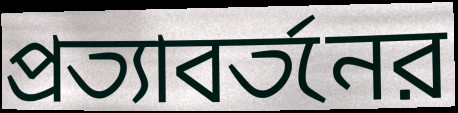
প্রত্যাবর্তনের